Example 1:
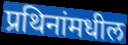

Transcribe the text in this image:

प्रथिनांमधील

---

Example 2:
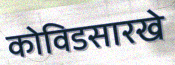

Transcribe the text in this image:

कोविडसारखे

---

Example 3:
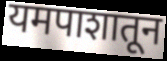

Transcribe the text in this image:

यमपाशातून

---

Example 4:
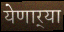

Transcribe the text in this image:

येणार्या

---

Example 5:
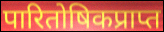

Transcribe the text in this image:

पारितोषिकप्राप्त